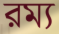
রম্য